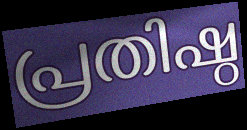
പ്രതിഷ്ഠ